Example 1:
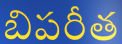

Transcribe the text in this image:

బిపరీత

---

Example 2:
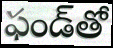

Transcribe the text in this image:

ఫండ్‌తో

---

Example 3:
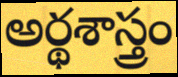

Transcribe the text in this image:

అర్థశాస్త్రం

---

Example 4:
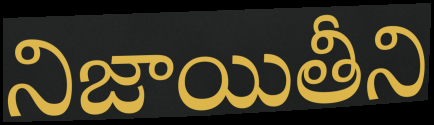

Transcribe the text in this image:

నిజాయితీని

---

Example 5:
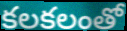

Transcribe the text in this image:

కలకలంతో